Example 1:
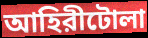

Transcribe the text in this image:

আহিরীটোলা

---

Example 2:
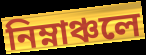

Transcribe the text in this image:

নিম্নাঞ্চলে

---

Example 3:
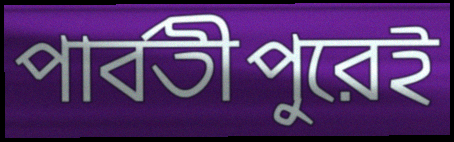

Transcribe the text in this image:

পার্বতীপুরেই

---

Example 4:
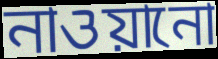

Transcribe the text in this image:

নাওয়ানো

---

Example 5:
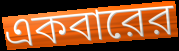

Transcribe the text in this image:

একবারের